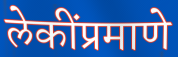
लेकींप्रमाणे